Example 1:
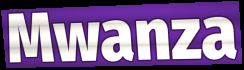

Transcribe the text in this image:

Mwanza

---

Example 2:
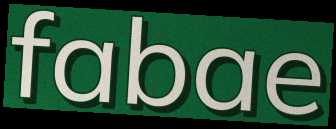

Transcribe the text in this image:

fabae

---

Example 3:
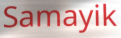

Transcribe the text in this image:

Samayik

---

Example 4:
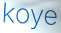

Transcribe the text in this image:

koye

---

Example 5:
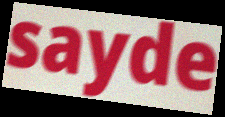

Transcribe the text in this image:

sayde